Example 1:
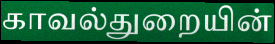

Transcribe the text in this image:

காவல்துறையின்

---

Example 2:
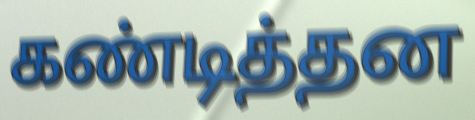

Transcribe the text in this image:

கண்டித்தன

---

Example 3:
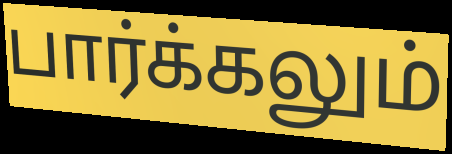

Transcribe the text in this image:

பார்க்கலும்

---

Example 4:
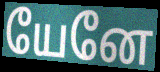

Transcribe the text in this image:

யேனே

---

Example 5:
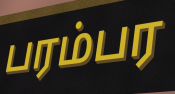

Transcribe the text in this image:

பரம்பர